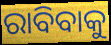
ରାବିବାକୁ